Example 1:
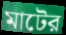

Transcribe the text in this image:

মাটের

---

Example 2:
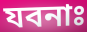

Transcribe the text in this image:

যবনাঃ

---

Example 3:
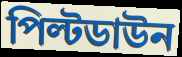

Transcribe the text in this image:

পিল্টডাউন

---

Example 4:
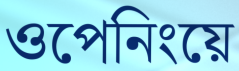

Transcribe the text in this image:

ওপেনিংয়ে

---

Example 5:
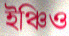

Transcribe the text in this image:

ইঞ্চিও